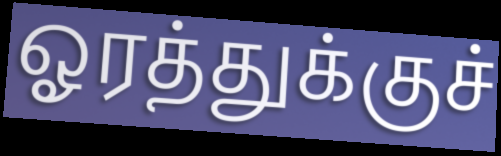
ஓரத்துக்குச்